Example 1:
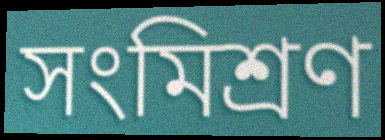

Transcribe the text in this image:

সংমিশ্রণ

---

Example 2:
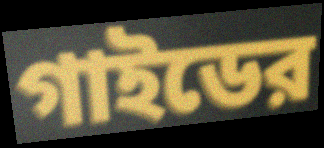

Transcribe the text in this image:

গাইডের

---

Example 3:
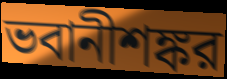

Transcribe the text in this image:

ভবানীশঙ্কর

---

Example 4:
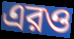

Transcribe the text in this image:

এরও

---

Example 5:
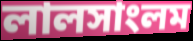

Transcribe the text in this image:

লালসাংলম